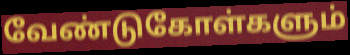
வேண்டுகோள்களும்